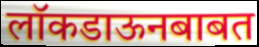
लॉकडाऊनबाबत